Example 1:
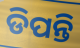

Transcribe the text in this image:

ଡିପନ୍ତି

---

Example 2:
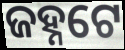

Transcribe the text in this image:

ଜହ୍ନଟେ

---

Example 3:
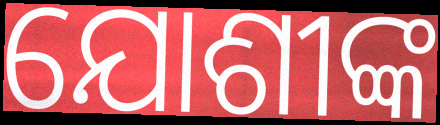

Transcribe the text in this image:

ଯୋଶୀଙ୍କ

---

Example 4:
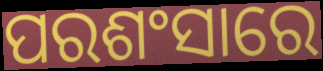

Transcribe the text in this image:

ପରଶଂସାରେ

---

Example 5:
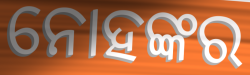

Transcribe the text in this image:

ନୋହଙ୍କର